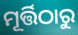
ମୂର୍ତ୍ତିଠାରୁ